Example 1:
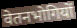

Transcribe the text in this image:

वेतनभोगियों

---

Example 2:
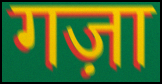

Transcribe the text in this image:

गज़ा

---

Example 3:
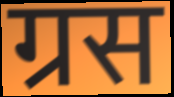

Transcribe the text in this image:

ग्रस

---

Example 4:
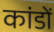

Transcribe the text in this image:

कांडों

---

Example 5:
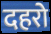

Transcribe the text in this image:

दहरो